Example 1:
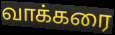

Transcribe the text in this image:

வாக்கரை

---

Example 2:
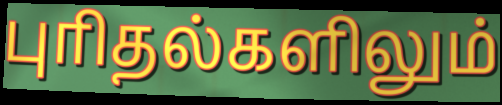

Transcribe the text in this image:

புரிதல்களிலும்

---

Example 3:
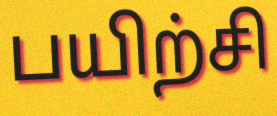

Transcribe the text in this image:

பயிற்சி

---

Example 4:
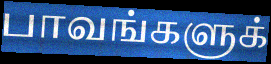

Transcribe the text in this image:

பாவங்களுக்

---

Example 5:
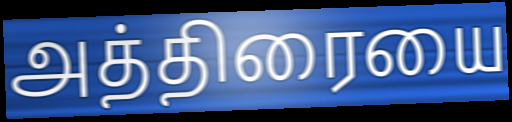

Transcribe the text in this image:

அத்திரையை